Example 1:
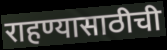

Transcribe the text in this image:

राहण्यासाठीची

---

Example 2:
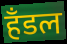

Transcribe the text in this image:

हॅंडल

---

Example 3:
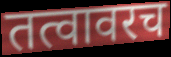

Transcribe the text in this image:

तत्वावरच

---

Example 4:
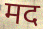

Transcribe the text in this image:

मद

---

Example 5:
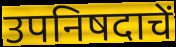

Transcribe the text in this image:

उपनिषदाचें